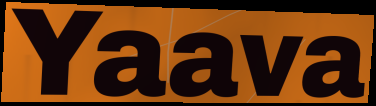
Yaava